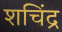
शचिंद्र